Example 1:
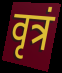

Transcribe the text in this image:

वृत्रं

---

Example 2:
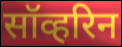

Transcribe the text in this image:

सॉव्हरिन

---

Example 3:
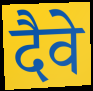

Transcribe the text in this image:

दैवे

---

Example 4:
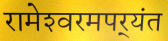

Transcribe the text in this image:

रामेश्वरमपर्यंत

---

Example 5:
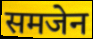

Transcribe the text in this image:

समजेन